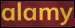
alamy